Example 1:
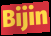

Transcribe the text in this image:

Bijin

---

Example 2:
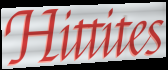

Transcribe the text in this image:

Hittites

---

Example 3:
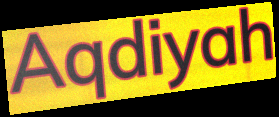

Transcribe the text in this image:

Aqdiyah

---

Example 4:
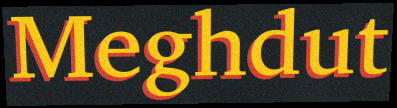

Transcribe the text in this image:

Meghdut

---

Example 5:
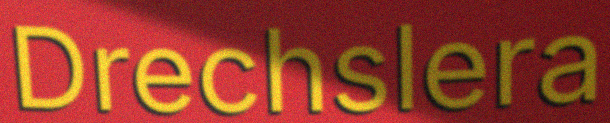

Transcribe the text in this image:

Drechslera